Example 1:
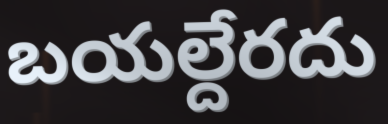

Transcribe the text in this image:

బయల్దేరదు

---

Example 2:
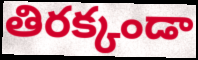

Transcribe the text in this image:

తిరక్కండా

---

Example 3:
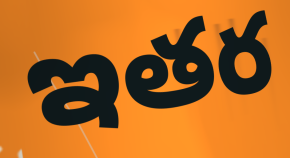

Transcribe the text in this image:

ఇతర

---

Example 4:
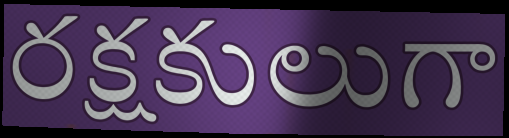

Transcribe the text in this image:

రక్షకులుగా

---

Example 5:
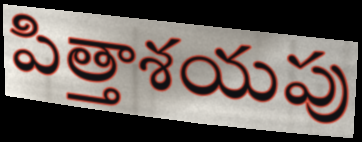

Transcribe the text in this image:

పిత్తాశయపు